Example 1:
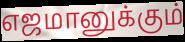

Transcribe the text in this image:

எஜமானுக்கும்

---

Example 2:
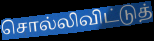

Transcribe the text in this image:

சொல்லிவிட்டுத்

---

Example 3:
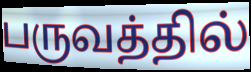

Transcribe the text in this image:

பருவத்தில்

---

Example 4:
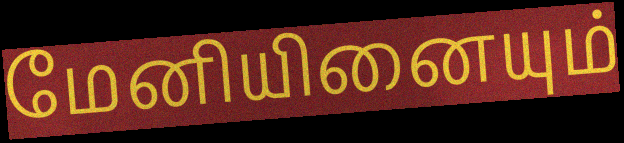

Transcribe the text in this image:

மேனியினையும்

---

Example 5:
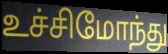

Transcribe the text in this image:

உச்சிமோந்து